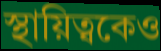
স্থায়িত্বকেও